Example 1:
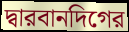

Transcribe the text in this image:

দ্বারবানদিগের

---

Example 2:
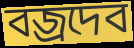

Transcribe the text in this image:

বজ্রদেব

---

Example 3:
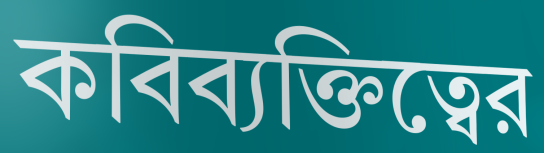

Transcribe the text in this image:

কবিব্যক্তিত্বের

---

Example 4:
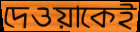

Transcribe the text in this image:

দেওয়াকেই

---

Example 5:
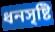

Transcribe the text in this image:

ধনসৃষ্টি